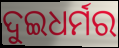
ଦୁଇଧର୍ମର